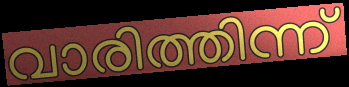
വാരിത്തിന്ന്